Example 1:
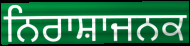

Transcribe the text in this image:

ਨਿਰਾਸ਼ਾਜਨਕ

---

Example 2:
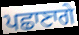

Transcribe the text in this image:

ਪਛਾਣਾਗੇ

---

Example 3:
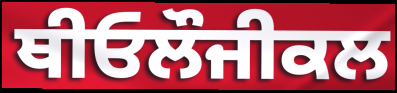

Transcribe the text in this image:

ਥੀਓਲੌਜੀਕਲ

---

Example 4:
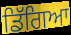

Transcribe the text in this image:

ਡਿੱਗਿਆ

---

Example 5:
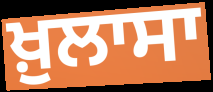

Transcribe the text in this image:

ਖ਼ੁਲਾਸਾ